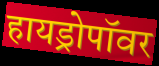
हायड्रोपॉवर